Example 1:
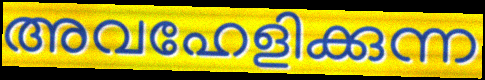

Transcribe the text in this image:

അവഹേളിക്കുന്ന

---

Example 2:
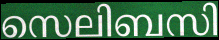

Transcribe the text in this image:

സെലിബസി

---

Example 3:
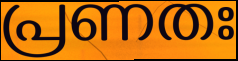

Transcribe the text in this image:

പ്രണതഃ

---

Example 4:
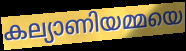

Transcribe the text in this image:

കല്യാണിയമ്മയെ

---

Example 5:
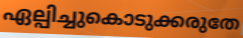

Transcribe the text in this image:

ഏല്പിച്ചുകൊടുക്കരുതേ